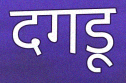
दगडू